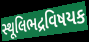
સ્થૂલિભદ્રવિષયક